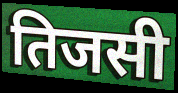
तिजसी